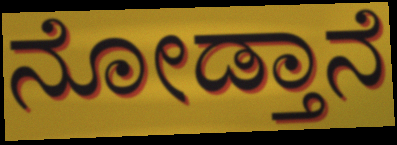
ನೋಡ್ತಾನೆ